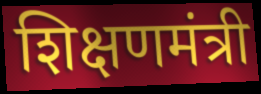
शिक्षणमंत्री